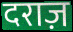
दराज़